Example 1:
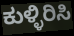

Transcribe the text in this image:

ಕುಳ್ಳಿರಿಸಿ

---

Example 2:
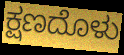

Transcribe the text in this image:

ಕ್ಷಣದೊಳು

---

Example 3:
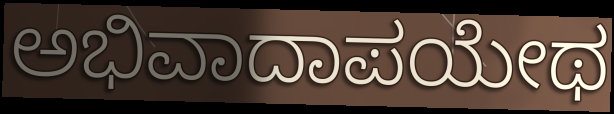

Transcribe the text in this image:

ಅಭಿವಾದಾಪಯೇಥ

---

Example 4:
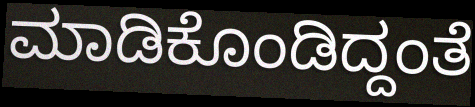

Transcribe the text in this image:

ಮಾಡಿಕೊಂಡಿದ್ದಂತೆ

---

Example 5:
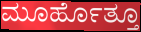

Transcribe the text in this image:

ಮೂರ್ಹೊತ್ತೂ